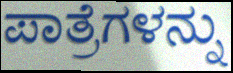
ಪಾತ್ರೆಗಳನ್ನು